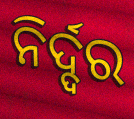
ନିର୍ଦ୍ଦର